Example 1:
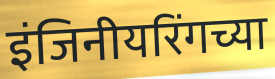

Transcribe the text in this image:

इंजिनीयरिंगच्या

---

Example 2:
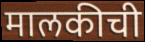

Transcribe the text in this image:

मालकीची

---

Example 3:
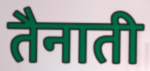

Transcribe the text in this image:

तैनाती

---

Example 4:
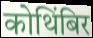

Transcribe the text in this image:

कोथिंबिर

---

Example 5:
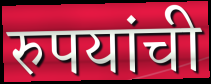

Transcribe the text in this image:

रुपयांची